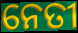
ନେତୀ